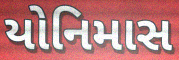
યોનિમાસ